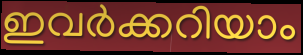
ഇവർക്കറിയാം